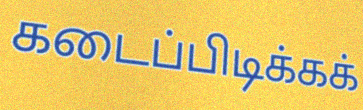
கடைப்பிடிக்கக்